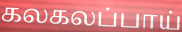
கலகலப்பாய்